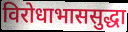
विरोधाभाससुद्धा